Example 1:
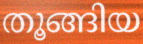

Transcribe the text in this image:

തൂങ്ങിയ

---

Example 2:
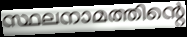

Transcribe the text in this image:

സ്ഥലനാമത്തിന്റെ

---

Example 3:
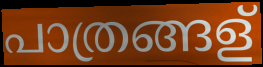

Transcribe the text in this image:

പാത്രങ്ങള്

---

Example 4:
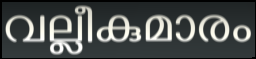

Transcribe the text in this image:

വല്ലീകുമാരം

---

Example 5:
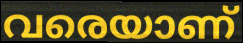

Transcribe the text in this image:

വരെയാണ്